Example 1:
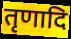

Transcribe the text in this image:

तृणादि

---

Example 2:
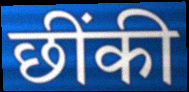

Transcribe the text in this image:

छींकी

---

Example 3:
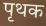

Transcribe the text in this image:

पृथक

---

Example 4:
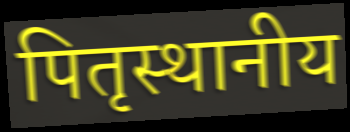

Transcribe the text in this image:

पितृस्थानीय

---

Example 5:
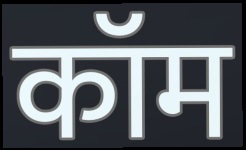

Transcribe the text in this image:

कॉम